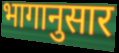
भागानुसार